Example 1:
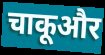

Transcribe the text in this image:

चाकूऔर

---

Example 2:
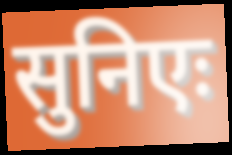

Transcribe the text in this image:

सुनिएः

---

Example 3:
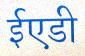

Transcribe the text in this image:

ईएडी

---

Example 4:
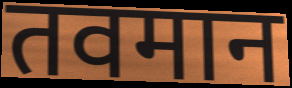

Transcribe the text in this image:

तवमान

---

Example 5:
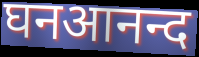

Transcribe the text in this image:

घनआनन्द